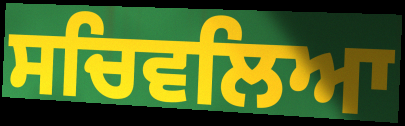
ਸਚਿਵਲਿਆ